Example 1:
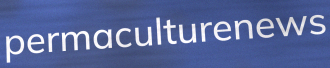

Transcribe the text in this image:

permaculturenews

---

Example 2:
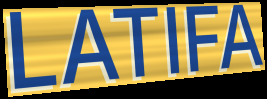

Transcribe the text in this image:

LATIFA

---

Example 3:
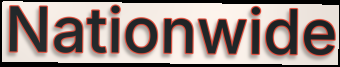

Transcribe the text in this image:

Nationwide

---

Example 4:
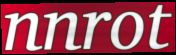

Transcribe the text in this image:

nnrot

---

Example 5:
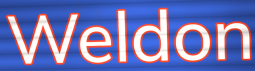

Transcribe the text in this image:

Weldon